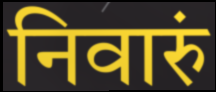
निवारुं